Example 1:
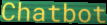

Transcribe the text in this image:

Chatbot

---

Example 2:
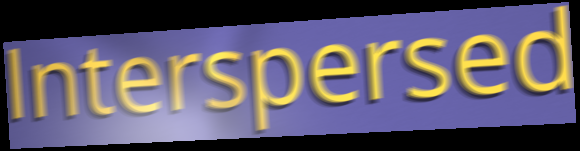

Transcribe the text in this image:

Interspersed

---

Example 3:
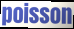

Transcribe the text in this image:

poisson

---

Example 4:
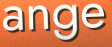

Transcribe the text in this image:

ange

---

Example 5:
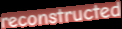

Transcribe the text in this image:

reconstructed